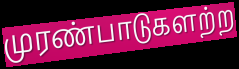
முரண்பாடுகளற்ற